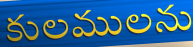
కులములను